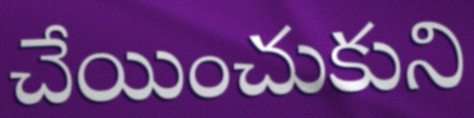
చేయించుకుని